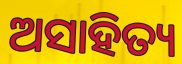
ଅସାହିତ୍ୟ